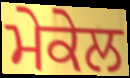
ਮੇਕੇਲ